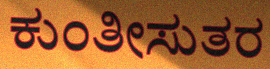
ಕುಂತೀಸುತರ